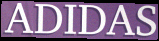
ADIDAS